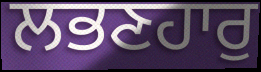
ਲਭਣਹਾਰੁ